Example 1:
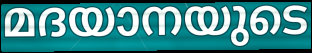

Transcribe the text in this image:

മദയാനയുടെ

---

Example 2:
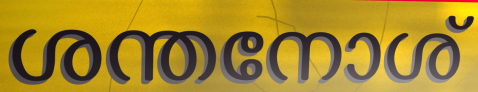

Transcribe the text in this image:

ശന്തനോശ്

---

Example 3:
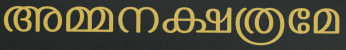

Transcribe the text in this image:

അമ്മനക്ഷത്രമേ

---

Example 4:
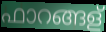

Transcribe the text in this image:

ഫാറങ്ങള്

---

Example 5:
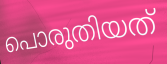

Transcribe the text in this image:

പൊരുതിയത്